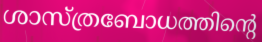
ശാസ്ത്രബോധത്തിന്റെ